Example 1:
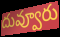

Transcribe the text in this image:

దువ్వూరు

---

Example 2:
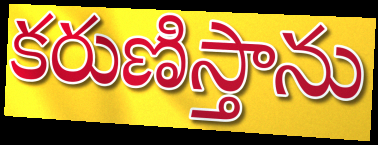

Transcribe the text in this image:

కరుణిస్తాను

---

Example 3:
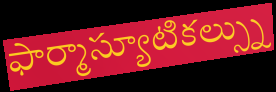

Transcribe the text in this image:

ఫార్మాస్యూటికల్స్ను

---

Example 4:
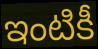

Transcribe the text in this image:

ఇంటికీ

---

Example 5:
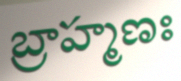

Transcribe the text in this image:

బ్రాహ్మణః